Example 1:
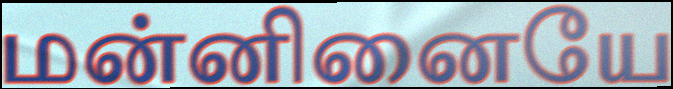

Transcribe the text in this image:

மன்னினையே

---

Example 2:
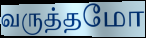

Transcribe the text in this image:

வருத்தமோ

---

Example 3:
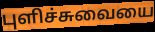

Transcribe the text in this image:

புளிச்சுவையை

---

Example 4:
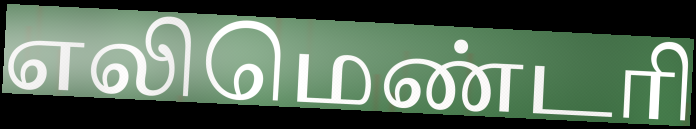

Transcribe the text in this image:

எலிமெண்டரி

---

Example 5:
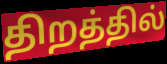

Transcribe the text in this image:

திறத்தில்